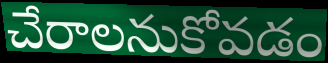
చేరాలనుకోవడం